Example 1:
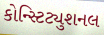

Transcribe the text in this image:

કોન્સ્ટિટ્યુશનલ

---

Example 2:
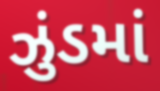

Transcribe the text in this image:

ઝુંડમાં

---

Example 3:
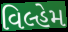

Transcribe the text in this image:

વિલ્હેમ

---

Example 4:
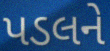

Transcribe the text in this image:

પડલને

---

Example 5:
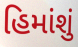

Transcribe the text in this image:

હિમાંશું